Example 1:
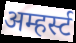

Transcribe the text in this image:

अम्हर्स्ट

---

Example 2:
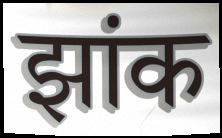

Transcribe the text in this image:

झांक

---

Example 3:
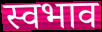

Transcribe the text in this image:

स्वभाव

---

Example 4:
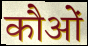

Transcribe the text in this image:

कौओं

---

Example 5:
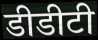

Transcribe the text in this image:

डीडीटी